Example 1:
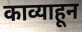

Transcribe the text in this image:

काव्याहून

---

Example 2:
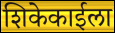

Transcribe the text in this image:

शिकेकाईला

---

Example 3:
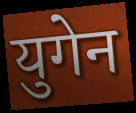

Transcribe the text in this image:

युगेन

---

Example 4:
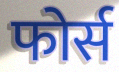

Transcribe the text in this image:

फोर्स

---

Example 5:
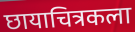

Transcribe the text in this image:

छायाचित्रकला